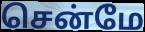
சென்மே